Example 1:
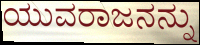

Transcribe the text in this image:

ಯುವರಾಜನನ್ನು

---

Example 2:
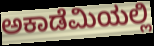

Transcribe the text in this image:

ಅಕಾಡೆಮಿಯಲ್ಲಿ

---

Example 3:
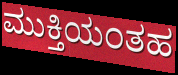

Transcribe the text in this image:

ಮುಕ್ತಿಯಂತಹ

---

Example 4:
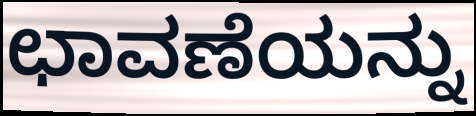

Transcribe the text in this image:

ಛಾವಣೆಯನ್ನು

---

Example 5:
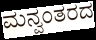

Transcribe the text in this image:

ಮನ್ವಂತರದ